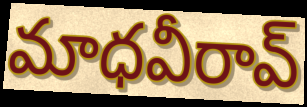
మాధవీరావ్